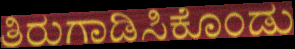
ತಿರುಗಾಡಿಸಿಕೊಂಡು